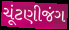
ચૂંટણીજંગ